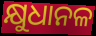
କ୍ଷୁଧାନଳ